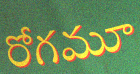
రోగమూ